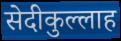
सेदीकुल्लाह